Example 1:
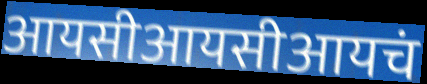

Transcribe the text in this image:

आयसीआयसीआयचं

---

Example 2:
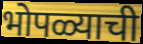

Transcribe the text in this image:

भोपळ्याची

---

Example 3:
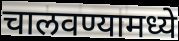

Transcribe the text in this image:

चालवण्यामध्ये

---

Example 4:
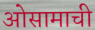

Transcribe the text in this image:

ओसामाची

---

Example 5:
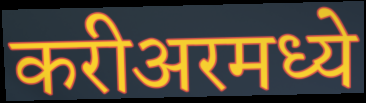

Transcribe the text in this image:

करीअरमध्ये